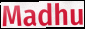
Madhu